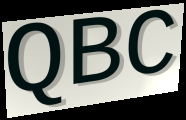
QBC